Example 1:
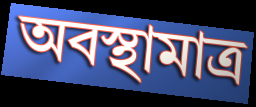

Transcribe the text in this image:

অবস্থামাত্র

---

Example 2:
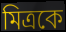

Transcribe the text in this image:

মিত্রকে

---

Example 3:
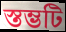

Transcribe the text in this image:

স্তম্ভটি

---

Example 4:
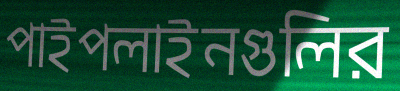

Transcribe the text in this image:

পাইপলাইনগুলির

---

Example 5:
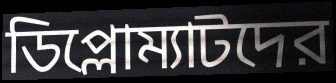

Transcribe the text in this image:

ডিপ্লোম্যাটদের